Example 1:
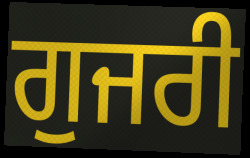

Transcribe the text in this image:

ਗੁਜਰੀ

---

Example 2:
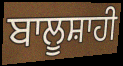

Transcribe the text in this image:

ਬਾਲੂਸ਼ਾਹੀ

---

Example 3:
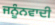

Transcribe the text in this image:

ਜਨੂੰਨਵਾਦੀ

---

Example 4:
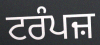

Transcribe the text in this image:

ਟਰੰਪਜ਼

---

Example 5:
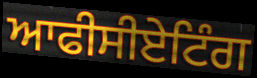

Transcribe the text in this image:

ਆਫੀਸੀਏਟਿੰਗ